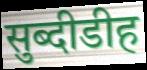
सुब्दीडीह